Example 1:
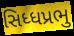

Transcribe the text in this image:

સિધ્ધપ્રભુ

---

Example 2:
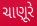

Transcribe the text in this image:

ચાણૂરે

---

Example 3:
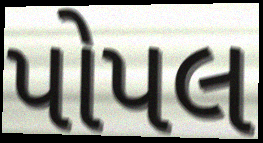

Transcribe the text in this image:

પોપલ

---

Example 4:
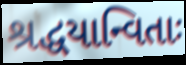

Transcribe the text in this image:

શ્રદ્ધયાન્વિતાઃ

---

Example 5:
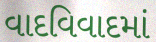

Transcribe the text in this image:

વાદવિવાદમાં